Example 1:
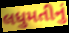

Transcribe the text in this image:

લધુમતીનું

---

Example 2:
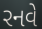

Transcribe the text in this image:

રનવે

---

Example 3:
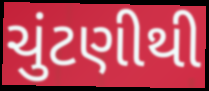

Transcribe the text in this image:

ચુંટણીથી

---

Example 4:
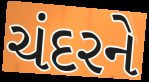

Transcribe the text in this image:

ચંદરને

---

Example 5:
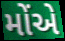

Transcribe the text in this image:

મોંએ